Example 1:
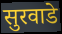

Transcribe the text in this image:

सुरवाडे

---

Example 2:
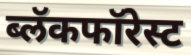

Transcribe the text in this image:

ब्लॅकफॉरेस्ट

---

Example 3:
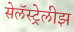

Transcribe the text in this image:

सेलॅस्ट्रेलीझ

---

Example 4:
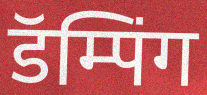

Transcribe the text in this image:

डॅम्पिंग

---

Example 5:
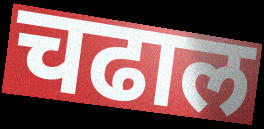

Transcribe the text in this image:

चढाल